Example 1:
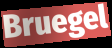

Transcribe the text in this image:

Bruegel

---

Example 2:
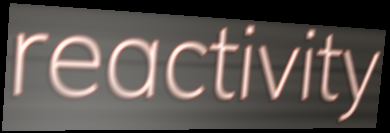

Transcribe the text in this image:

reactivity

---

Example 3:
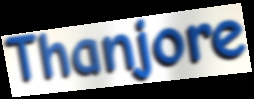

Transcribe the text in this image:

Thanjore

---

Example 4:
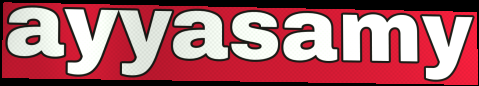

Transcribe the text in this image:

ayyasamy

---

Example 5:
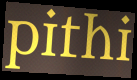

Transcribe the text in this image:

pithi